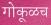
गोकूळच